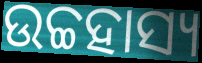
ଉଚ୍ଚହାସ୍ୟ